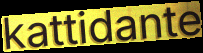
kattidante